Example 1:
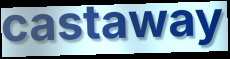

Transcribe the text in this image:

castaway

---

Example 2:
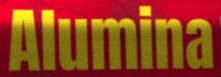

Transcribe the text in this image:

Alumina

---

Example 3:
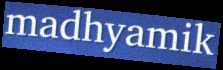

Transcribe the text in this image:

madhyamik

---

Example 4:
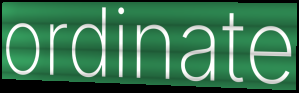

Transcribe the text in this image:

ordinate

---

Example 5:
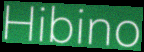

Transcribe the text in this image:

Hibino